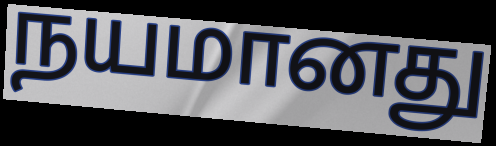
நயமானது